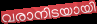
വരാനിടയായി